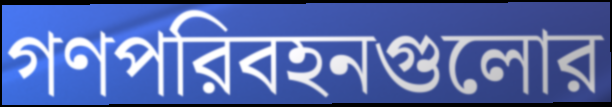
গণপরিবহনগুলোর